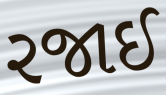
રજાઈ